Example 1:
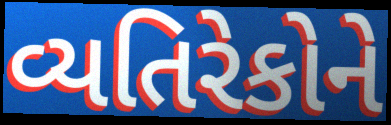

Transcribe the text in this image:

વ્યતિરેકોને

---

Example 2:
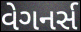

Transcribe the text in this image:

વેગનર્સ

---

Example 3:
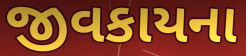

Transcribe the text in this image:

જીવકાયના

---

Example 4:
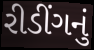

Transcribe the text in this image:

રીડીંગનું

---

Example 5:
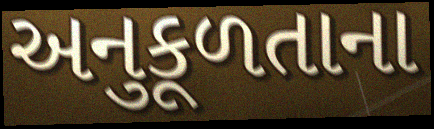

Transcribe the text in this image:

અનુકૂળતાના